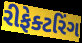
રીફેક્ટરિંગ